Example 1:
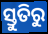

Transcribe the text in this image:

ସ୍ତୁତିରୁ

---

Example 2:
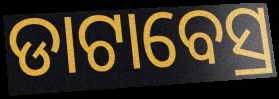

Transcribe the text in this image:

ଡାଟାବେସ୍ର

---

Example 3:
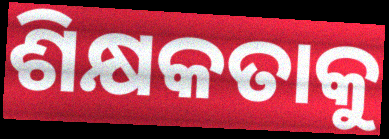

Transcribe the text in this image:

ଶିକ୍ଷକତାକୁ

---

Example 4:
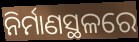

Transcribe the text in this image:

ନିର୍ମାଣସ୍ଥଳରେ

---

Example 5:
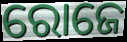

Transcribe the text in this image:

ରୋଜେ